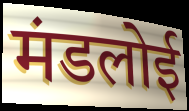
मंडलोई